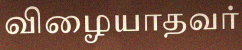
விழையாதவர்